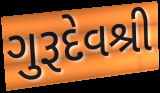
ગુરૂદેવશ્રી